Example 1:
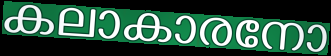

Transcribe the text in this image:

കലാകാരനോ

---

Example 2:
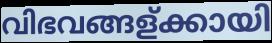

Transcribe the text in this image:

വിഭവങ്ങള്ക്കായി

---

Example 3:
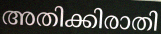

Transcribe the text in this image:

അതിക്കിരാതി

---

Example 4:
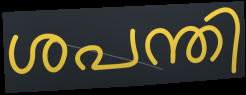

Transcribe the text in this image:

ശപന്തി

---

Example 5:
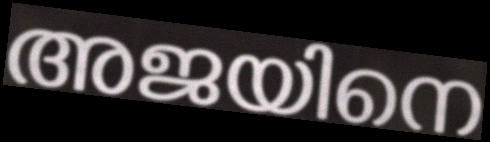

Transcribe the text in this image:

അജയിനെ